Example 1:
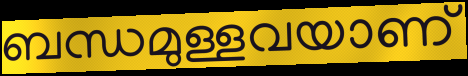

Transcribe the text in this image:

ബന്ധമുള്ളവയാണ്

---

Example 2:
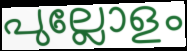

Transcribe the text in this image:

പുല്ലോളം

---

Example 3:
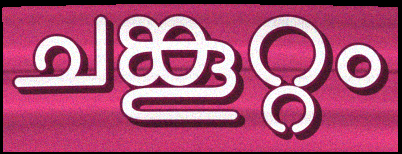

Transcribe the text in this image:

ചങ്കൂറ്റം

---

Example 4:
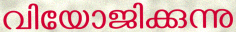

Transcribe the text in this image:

വിയോജിക്കുന്നു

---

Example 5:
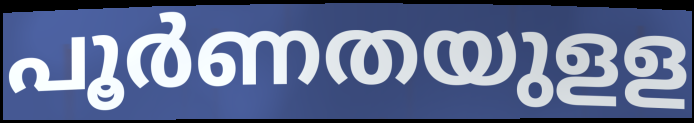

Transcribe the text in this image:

പൂർണതയുളള